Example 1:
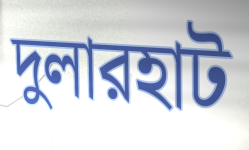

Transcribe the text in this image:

দুলারহাট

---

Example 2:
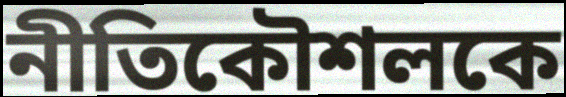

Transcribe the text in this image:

নীতিকৌশলকে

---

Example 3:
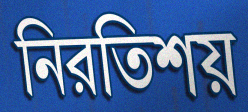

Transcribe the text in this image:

নিরতিশয়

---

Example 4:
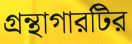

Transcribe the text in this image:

গ্রন্থাগারটির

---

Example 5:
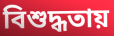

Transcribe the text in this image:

বিশুদ্ধতায়